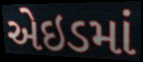
એઇડમાં